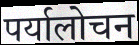
पर्यालोचन